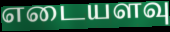
எடையளவு